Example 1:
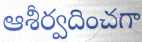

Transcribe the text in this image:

ఆశీర్వదించగా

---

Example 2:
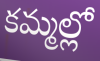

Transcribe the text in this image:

కమ్మల్లో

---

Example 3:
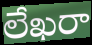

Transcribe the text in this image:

లేఖరా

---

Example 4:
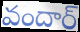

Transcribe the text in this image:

వందార్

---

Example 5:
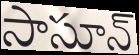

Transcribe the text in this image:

సాసూన్